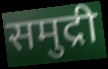
समुद्री